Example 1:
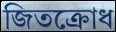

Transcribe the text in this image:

জিতক্রোধ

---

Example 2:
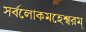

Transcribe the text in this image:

সর্বলোকমহেশ্বরম্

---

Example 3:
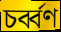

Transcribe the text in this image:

চর্ব্বণ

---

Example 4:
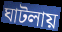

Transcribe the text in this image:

ঘাটলায়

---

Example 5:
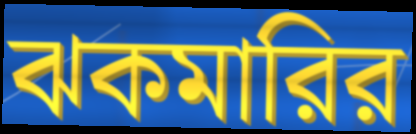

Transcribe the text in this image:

ঝকমারির